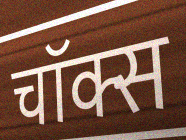
चॉक्स